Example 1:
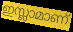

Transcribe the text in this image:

ഇസ്ലാമാണ്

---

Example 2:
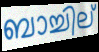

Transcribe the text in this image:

ബാച്ചില്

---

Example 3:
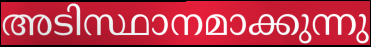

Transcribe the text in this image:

അടിസ്ഥാനമാക്കുന്നു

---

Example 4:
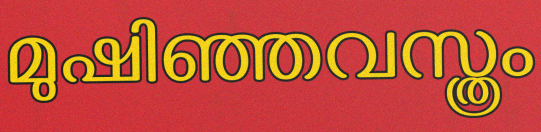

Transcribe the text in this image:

മുഷിഞ്ഞവസ്ത്രം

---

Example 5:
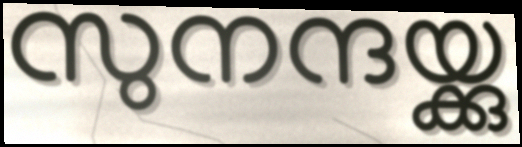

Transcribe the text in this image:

സുനന്ദയ്ക്കു